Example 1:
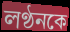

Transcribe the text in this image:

লণ্ঠনকে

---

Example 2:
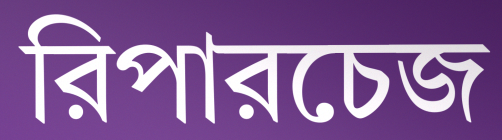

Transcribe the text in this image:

রিপারচেজ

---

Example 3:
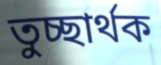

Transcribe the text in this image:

তুচ্ছার্থক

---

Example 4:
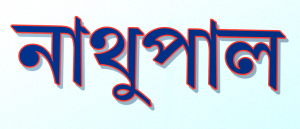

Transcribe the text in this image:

নাথুপাল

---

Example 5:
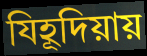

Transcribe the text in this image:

যিহূদিয়ায়